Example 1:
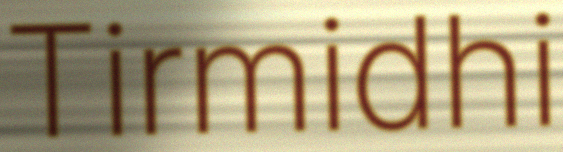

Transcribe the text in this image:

Tirmidhi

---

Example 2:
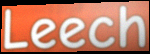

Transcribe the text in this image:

Leech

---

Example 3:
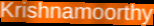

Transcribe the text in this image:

Krishnamoorthy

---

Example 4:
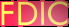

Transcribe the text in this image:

FDIC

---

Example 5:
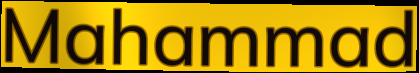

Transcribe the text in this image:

Mahammad